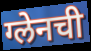
ग्लेनची